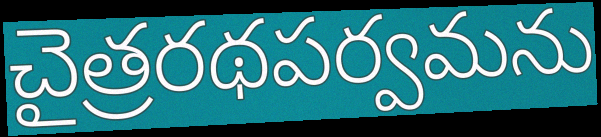
చైత్రరథపర్వమను